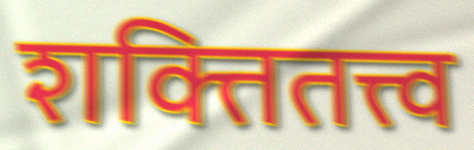
शक्तितत्त्व